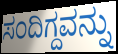
ಸಂದಿಗ್ದವನ್ನು